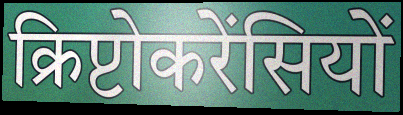
क्रिप्टोकरेंसियों